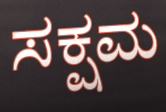
ಸಕ್ಷಮ